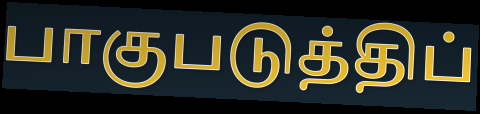
பாகுபடுத்திப்